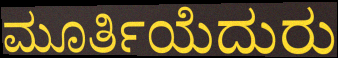
ಮೂರ್ತಿಯೆದುರು